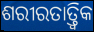
ଶରୀରତାତ୍ତ୍ଵିକ